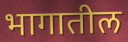
भागातील